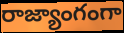
రాజ్యాంగంగా